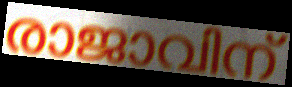
രാജാവിന്